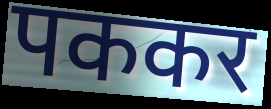
पककर